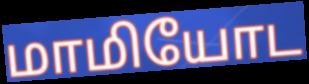
மாமியோட